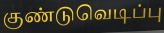
குண்டுவெடிப்பு